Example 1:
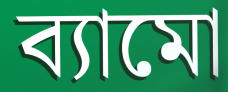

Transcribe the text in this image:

ব্যামো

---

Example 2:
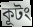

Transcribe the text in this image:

কূটং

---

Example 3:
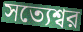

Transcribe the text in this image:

সত্যেশ্বর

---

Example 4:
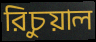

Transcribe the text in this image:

রিচুয়াল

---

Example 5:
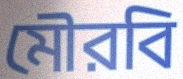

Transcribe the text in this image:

মৌরবি